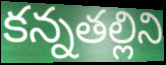
కన్నతల్లిని